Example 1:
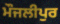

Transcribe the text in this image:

ਮੌਜਲੀਪੁਰ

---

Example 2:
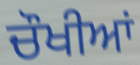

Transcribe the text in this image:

ਚੌਖੀਆਂ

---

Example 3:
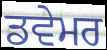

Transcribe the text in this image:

ਡਵੇਮਰ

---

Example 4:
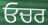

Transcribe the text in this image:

ਓਚਰ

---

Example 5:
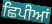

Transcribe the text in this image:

ਛਿਪੀਆਂ